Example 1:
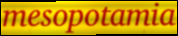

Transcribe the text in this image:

mesopotamia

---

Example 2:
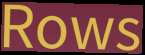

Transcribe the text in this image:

Rows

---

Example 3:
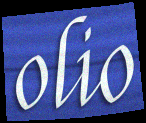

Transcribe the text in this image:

olio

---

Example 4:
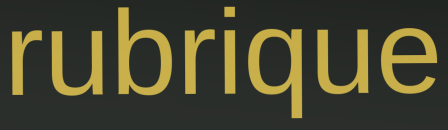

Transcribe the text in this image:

rubrique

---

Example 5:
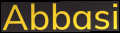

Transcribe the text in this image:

Abbasi